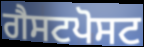
ਗੈਸਟਪੋਸਟ